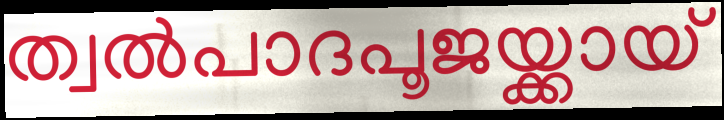
ത്വൽപാദപൂജയ്ക്കായ്